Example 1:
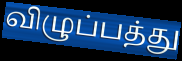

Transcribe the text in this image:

விழுப்பத்து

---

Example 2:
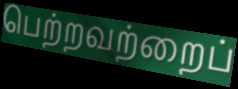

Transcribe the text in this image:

பெற்றவற்றைப்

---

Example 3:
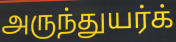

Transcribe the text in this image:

அருந்துயர்க்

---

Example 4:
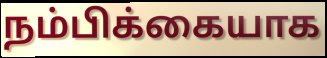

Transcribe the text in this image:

நம்பிக்கையாக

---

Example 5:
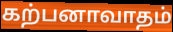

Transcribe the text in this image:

கற்பனாவாதம்